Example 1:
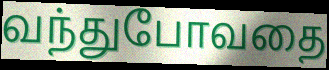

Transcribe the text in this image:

வந்துபோவதை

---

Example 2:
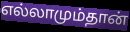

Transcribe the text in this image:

எல்லாமும்தான்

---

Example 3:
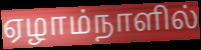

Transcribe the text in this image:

ஏழாம்நாளில்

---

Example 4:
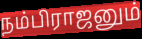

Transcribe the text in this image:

நம்பிராஜனும்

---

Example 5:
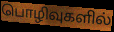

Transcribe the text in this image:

பொழிவுகளில்